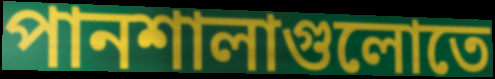
পানশালাগুলোতে